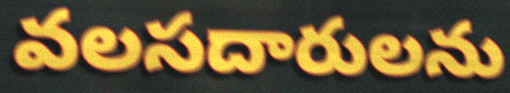
వలసదారులను